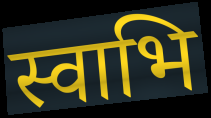
स्वाभि